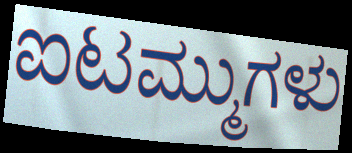
ಐಟಮ್ಮುಗಳು